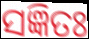
ସଜ୍ଞିତଃ